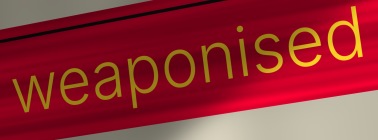
weaponised